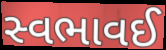
સ્વભાવઈ